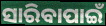
ସାରିବାପାଇଁ